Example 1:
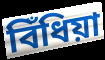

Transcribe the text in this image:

বিঁধিয়া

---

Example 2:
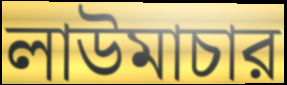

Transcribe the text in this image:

লাউমাচার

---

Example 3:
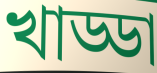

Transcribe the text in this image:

খাড্ডা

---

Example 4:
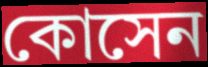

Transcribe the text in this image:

কোসেন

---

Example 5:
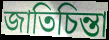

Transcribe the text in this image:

জাতিচিন্তা